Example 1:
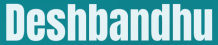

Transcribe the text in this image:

Deshbandhu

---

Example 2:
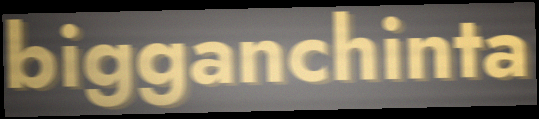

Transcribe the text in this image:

bigganchinta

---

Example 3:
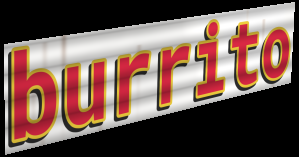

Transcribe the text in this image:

burrito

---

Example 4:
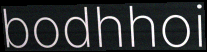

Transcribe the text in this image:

bodhhoi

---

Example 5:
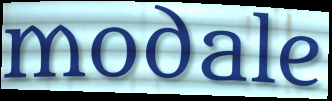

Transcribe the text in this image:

modale